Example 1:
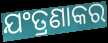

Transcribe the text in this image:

ଯଂତ୍ରଣାକର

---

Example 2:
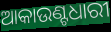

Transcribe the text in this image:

ଆକାଉଣ୍ଟଧାରୀ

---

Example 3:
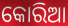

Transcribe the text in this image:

କୋରିଆ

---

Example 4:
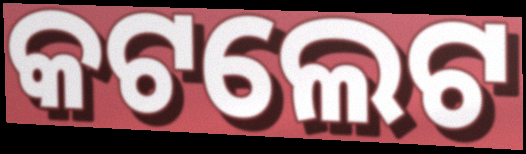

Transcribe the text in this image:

କଟଲେଟ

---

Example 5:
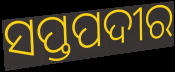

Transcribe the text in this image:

ସପ୍ତପଦୀର